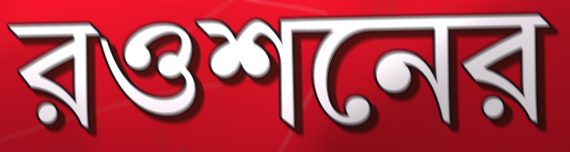
রওশনের